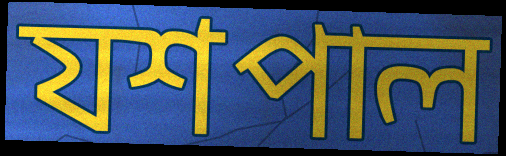
যশপাল